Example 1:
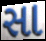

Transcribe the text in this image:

સા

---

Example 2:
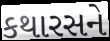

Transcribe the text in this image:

કથારસને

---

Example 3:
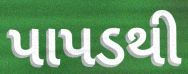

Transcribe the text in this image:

પાપડથી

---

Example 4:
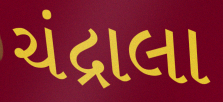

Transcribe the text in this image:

ચંદ્રાલા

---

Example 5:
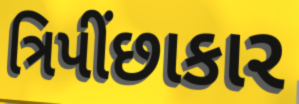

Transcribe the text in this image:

ત્રિપીંછાકાર